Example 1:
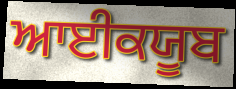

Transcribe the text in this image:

ਆਈਕਯੂਬ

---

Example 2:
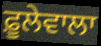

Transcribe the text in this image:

ਫ਼ੂਲੇਵਾਲਾ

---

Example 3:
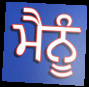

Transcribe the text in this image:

ਮੈਨੂੰ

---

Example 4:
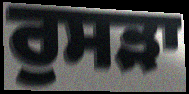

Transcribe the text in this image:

ਰੁਸੜਾ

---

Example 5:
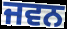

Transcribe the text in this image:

ਜਵਨ